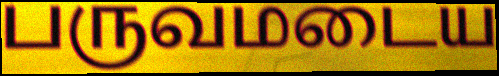
பருவமடைய